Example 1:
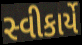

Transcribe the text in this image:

સ્વીકાર્યે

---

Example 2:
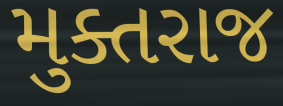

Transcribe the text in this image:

મુક્તરાજ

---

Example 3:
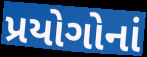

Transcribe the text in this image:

પ્રયોગોનાં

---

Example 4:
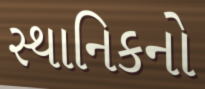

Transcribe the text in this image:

સ્થાનિકનો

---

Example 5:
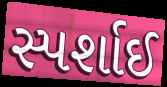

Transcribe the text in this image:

સ્પર્શાઈ